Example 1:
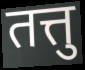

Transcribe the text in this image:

तत्तु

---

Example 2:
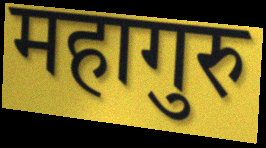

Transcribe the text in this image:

महागुरु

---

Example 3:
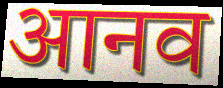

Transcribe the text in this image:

आनव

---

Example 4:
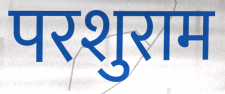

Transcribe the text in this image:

परशुराम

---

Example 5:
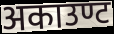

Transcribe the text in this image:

अकाउण्ट